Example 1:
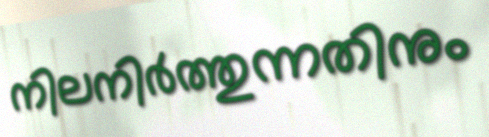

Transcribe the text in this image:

നിലനിർത്തുന്നതിനും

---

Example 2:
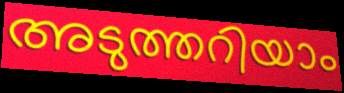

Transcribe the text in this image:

അടുത്തറിയാം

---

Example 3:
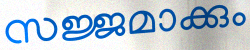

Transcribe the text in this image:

സജ്ജമാക്കും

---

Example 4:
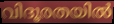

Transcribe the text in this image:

വിദൂരതയിൽ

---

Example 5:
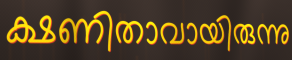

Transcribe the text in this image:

ക്ഷണിതാവായിരുന്നു